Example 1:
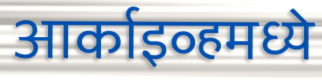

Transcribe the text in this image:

आर्काइव्हमध्ये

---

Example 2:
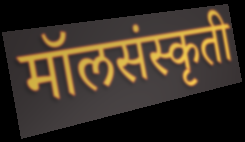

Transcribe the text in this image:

मॉलसंस्कृती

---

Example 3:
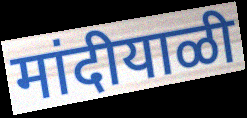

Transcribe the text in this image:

मांदीयाळी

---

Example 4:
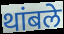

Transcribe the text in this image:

थांबले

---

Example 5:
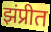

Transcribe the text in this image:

झंप्रीत